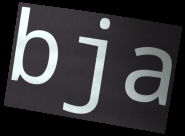
bja